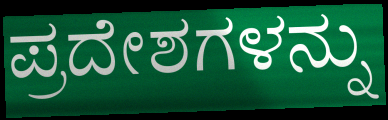
ಪ್ರದೇಶಗಳನ್ನು